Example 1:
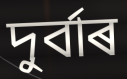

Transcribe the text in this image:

দুৰ্বাৰ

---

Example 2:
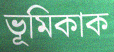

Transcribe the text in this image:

ভূমিকাক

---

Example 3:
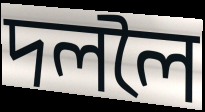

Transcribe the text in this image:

দললৈ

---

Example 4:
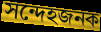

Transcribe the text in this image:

সন্দেহজনক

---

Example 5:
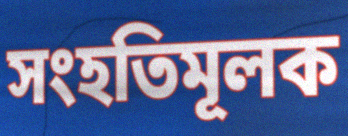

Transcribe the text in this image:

সংহতিমূলক